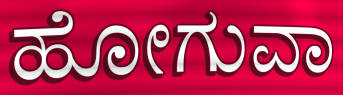
ಹೋಗುವಾ